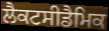
ਲੈਕਟਸੀਡੈਮਿਕ